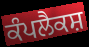
ਕੰਪਲੈਕਸ਼